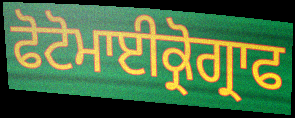
ਫੋਟੋਮਾਈਕ੍ਰੋਗ੍ਰਾਫ